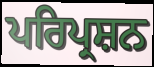
ਪਰਿਪ੍ਰਸ਼ਨ